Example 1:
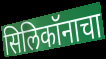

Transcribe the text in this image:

सिलिकॉनाचा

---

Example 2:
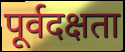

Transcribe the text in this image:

पूर्वदक्षता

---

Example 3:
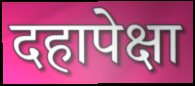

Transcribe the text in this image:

दहापेक्षा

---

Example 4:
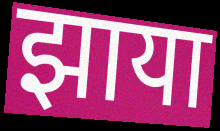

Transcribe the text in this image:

झाया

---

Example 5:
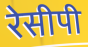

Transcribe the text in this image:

रेसीपी